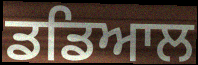
ਡਡਿਆਲ